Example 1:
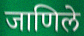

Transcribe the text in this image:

जाणिले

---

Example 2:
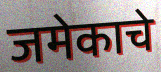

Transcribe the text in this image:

जमेकाचे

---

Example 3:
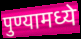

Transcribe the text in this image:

पुण्यामध्ये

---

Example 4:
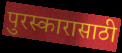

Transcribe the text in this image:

पुरस्कारासाठी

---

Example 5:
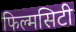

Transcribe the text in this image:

फिल्मसिटी